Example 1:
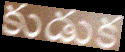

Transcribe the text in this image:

కుడుక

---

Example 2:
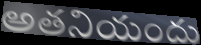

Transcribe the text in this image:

అతనియందు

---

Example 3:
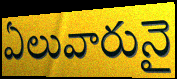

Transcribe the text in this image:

ఏలువారునై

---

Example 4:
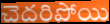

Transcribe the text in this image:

చెదరిపోయి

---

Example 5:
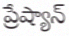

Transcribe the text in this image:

ప్రేష్యాన్